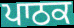
ਪਾਠਕ